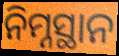
ନିମ୍ନସ୍ଥାନ